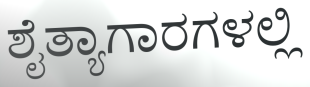
ಶೈತ್ಯಾಗಾರಗಳಲ್ಲಿ